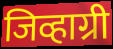
जिव्हाग्री